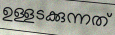
ഉള്ളടക്കുന്നത്